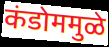
कंडोममुळे